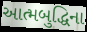
આત્મબુદ્ધિના